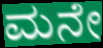
ಮನೇ